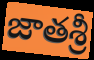
జాతశ్రీ